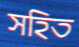
সহিত